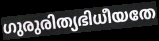
ഗുരുരിത്യഭിധീയതേ